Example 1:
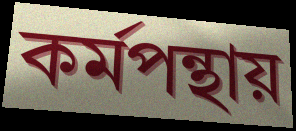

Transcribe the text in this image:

কর্মপন্থায়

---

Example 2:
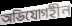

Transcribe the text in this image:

অভিযোগহীন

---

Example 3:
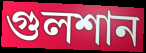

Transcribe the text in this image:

গুলশান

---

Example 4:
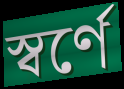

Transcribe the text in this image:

স্বর্ণে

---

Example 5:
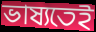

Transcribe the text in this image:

ভাষ্যতেই